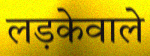
लड़केवाले